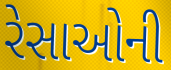
રેસાઓની